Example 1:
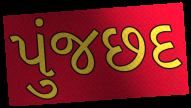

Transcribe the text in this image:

પુંજછદ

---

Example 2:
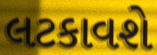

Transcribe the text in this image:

લટકાવશે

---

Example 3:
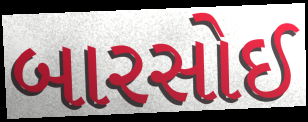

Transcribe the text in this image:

બારસોઈ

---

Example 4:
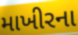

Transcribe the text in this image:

માખીરના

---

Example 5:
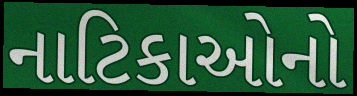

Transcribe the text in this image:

નાટિકાઓનો